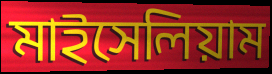
মাইসেলিয়াম